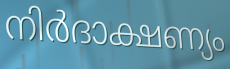
നിർദാക്ഷണ്യം